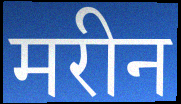
मरीन